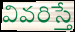
వివరిస్తే